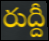
రుద్దీ